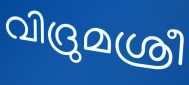
വിദ്രുമശ്രീ